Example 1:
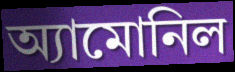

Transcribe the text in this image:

অ্যামোনিল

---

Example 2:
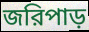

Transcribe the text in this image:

জরিপাড়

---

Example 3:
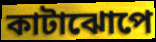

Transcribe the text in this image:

কাটাঝোপে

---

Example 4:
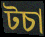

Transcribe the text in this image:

টচা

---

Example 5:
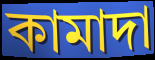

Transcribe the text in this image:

কামাদা